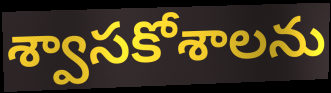
శ్వాసకోశాలను